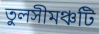
তুলসীমঞ্চটি